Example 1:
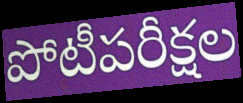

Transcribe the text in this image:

పోటీపరీక్షల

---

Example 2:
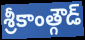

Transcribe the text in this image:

శ్రీకాంత్గౌడ్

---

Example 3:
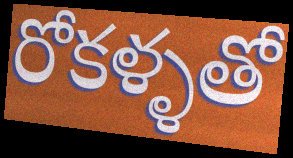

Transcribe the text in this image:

రోకళ్ళతో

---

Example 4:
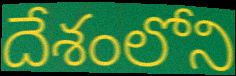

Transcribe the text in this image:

దేశంలోని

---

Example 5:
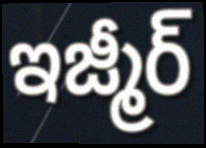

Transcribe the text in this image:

ఇజ్మీర్